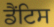
ਡੈਂਟਿਸ